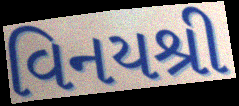
વિનયશ્રી